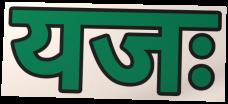
यजः